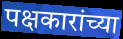
पक्षकारांच्या